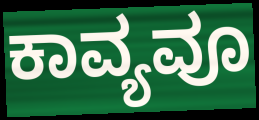
ಕಾವ್ಯವೂ